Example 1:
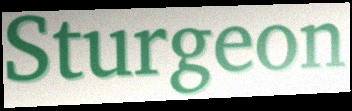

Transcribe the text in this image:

Sturgeon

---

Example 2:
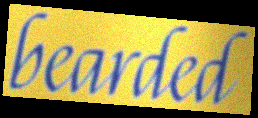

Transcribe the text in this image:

bearded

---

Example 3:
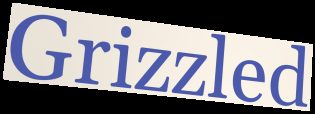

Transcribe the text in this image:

Grizzled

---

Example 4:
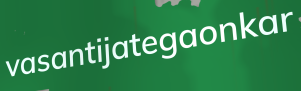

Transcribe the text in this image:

vasantijategaonkar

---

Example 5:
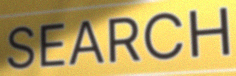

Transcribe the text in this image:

SEARCH